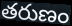
తరుణం